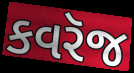
કવરૅજ